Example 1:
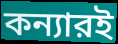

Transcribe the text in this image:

কন্যারই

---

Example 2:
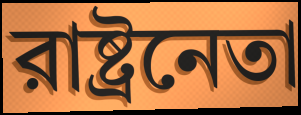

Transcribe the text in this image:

রাষ্ট্রনেতা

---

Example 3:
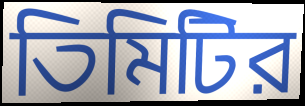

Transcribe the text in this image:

তিমিটির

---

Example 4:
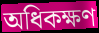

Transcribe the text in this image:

অধিকক্ষণ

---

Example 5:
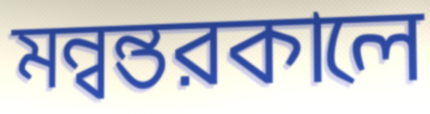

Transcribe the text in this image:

মন্বন্তরকালে